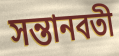
সন্তানবতী